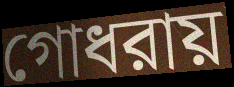
গোধরায়